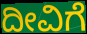
ದೀವಿಗೆ